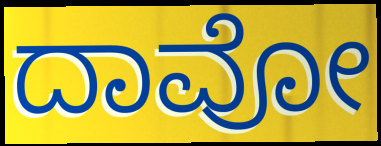
ದಾವೋ